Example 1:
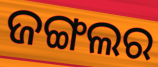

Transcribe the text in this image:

ଜଙ୍ଗଲର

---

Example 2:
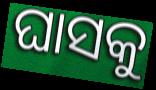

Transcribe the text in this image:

ଘାସକୁ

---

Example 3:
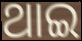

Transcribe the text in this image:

ଥାଇ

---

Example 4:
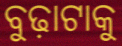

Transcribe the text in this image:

ବୁଢ଼ାଟାକୁ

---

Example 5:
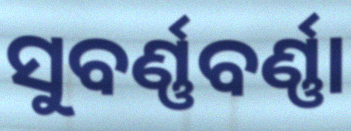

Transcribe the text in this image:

ସୁବର୍ଣ୍ଣବର୍ଣ୍ଣା